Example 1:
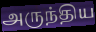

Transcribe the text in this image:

அருந்திய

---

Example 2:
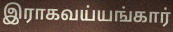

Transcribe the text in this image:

இராகவய்யங்கார்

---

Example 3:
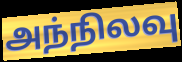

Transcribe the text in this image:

அந்நிலவு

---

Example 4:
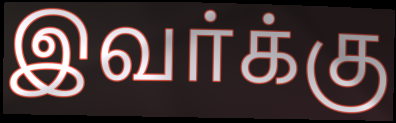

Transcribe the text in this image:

இவர்க்கு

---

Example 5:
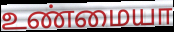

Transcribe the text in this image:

உண்மையா